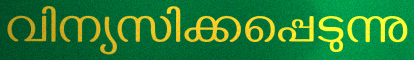
വിന്യസിക്കപ്പെടുന്നു